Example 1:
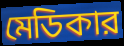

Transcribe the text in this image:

মেডিকার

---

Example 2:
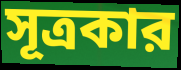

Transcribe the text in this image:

সূত্রকার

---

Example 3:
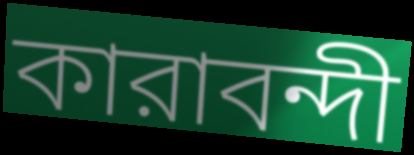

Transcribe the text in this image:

কারাবন্দী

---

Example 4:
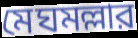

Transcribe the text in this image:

মেঘমল্লার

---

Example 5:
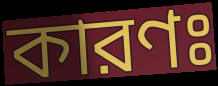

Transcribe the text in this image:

কারণঃ